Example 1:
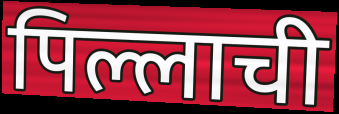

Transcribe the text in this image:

पिल्लाची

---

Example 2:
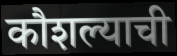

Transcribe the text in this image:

कौशल्याची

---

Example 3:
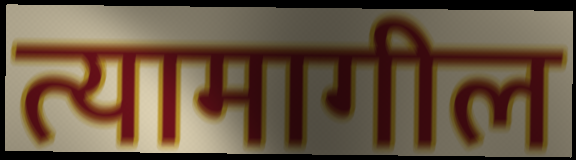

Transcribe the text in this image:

त्यामागील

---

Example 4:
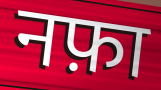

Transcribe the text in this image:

नफ़ा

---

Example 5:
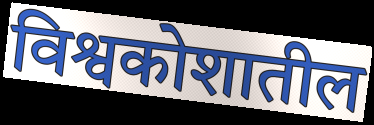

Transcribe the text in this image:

विश्वकोशातील